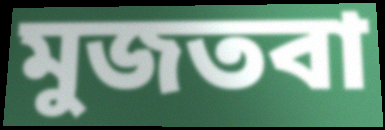
মুজতবা